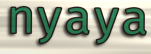
nyaya